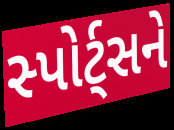
સ્પોર્ટ્સને